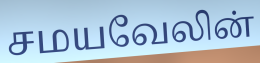
சமயவேலின்